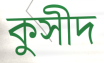
কুসীদ